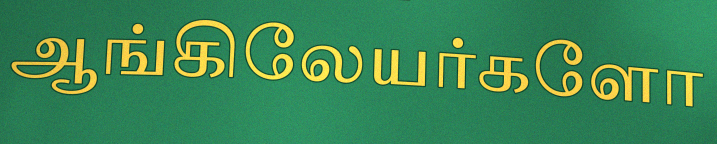
ஆங்கிலேயர்களோ